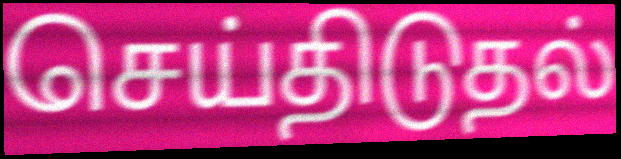
செய்திடுதல்